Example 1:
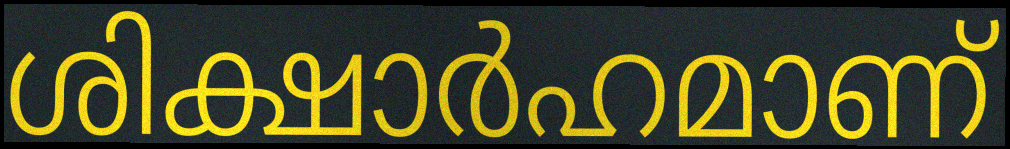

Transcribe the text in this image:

ശിക്ഷാർഹമാണ്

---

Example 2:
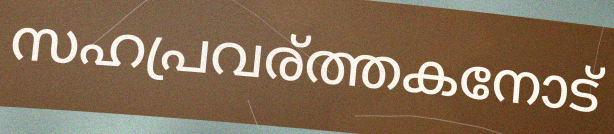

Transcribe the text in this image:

സഹപ്രവര്ത്തകനോട്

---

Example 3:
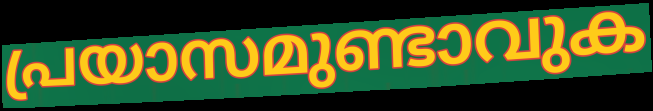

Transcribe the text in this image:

പ്രയാസമുണ്ടാവുക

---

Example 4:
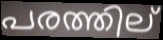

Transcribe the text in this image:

പരത്തില്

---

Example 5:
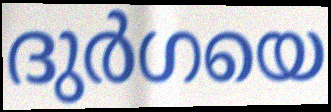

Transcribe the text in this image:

ദുർഗയെ